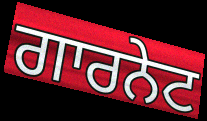
ਗਾਰਨੇਟ